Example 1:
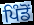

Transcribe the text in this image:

ਪਿੰਡੋਂ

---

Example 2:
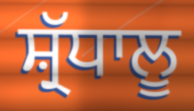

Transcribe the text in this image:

ਸ਼੍ਰੱਧਾਲੂ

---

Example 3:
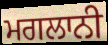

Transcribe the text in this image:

ਮਗਲਾਨੀ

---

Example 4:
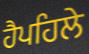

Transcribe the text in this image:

ਹੈਪਹਿਲੇ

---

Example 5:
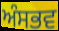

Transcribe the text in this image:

ਅੰਸਭਵ